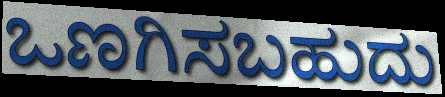
ಒಣಗಿಸಬಹುದು